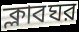
ক্লাবঘর